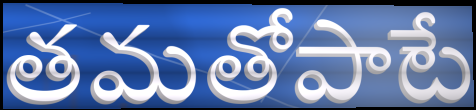
తమతోపాటే